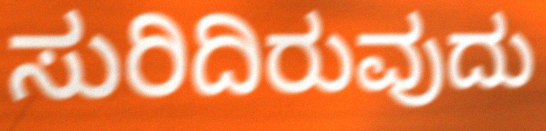
ಸುರಿದಿರುವುದು